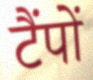
टैंपों